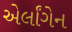
એર્લાંગેન